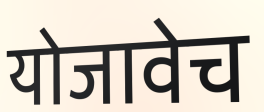
योजावेच